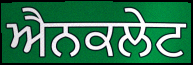
ਐਨਕਲੇਟ